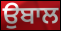
ਉਬਾਲ